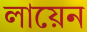
লায়েন